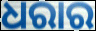
ଧରାର